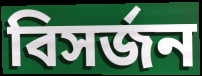
বিসর্জন